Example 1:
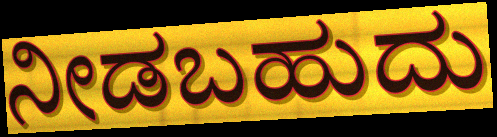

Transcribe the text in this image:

ನೀಡಬಹುದು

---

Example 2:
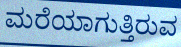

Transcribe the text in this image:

ಮರೆಯಾಗುತ್ತಿರುವ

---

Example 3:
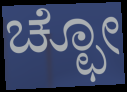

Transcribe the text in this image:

ಚ್ಛೋ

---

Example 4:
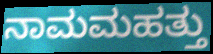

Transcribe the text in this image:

ನಾಮಮಹತ್ತು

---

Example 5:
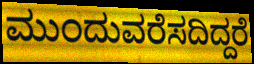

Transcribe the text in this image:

ಮುಂದುವರೆಸದಿದ್ದರೆ